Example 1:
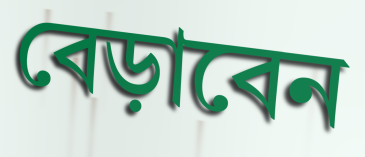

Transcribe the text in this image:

বেড়াবেন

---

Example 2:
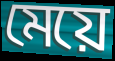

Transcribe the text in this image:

মেয়ে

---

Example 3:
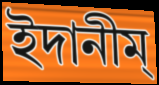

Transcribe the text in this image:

ইদানীম্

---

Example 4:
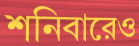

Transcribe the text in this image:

শনিবারেও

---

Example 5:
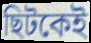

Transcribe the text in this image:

ছিটকেই